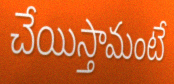
చేయిస్తామంటే